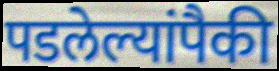
पडलेल्यांपैकी